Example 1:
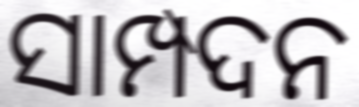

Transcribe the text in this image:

ସାମ୍ପଦନ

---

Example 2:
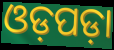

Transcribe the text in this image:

ଓଡ଼ପଡ଼ା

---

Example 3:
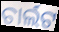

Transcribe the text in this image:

ଚାର୍ଲଟ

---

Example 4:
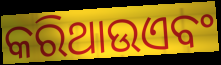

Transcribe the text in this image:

କରିଥାଉଏବଂ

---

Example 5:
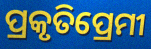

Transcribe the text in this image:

ପ୍ରକୃତିପ୍ରେମୀ